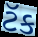
ટૅક